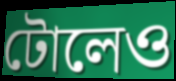
টোলেও